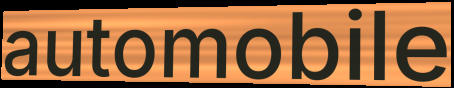
automobile